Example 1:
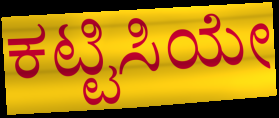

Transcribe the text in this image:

ಕಟ್ಟಿಸಿಯೇ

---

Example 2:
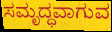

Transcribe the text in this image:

ಸಮೃದ್ಧವಾಗುವ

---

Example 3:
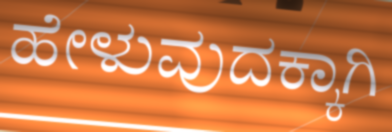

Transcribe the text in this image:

ಹೇಳುವುದಕ್ಕಾಗಿ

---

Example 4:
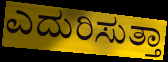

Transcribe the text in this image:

ಎದುರಿಸುತ್ತಾ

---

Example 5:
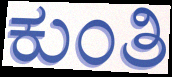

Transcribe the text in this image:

ಕುಂತಿ